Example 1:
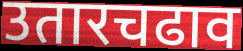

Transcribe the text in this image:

उतारचढाव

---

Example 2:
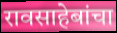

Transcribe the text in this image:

रावसाहेबांचा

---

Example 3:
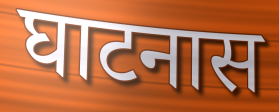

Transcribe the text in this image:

घाटनास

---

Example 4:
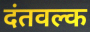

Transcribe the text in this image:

दंतवल्क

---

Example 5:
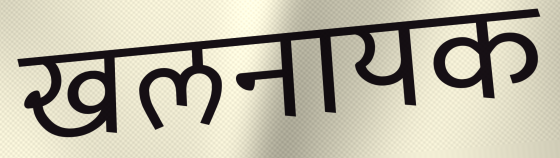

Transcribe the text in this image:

खलनायक